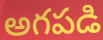
అగపడి